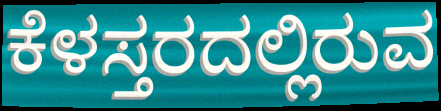
ಕೆಳಸ್ತರದಲ್ಲಿರುವ